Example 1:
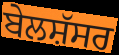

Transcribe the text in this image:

ਬੇਲਸ਼ੱਸਰ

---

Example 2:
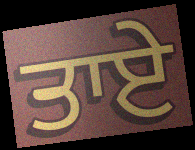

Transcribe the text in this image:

ਤਾਏ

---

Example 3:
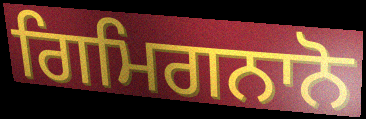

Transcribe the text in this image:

ਗਿਮਿਗਨਾਨੋ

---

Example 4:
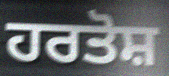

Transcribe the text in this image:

ਹਰਤੋਸ਼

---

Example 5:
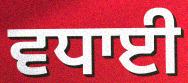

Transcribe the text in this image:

ਵਧਾਈ